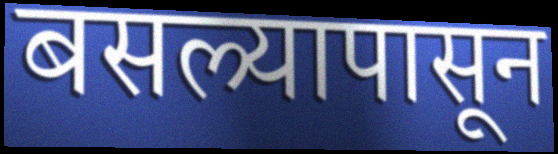
बसल्यापासून